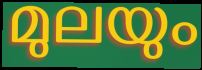
മുലയും